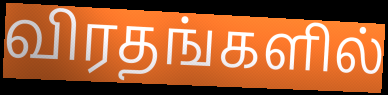
விரதங்களில்